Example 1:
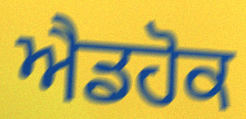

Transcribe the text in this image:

ਐਡਹੋਕ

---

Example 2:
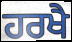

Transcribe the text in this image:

ਹਰਖੈ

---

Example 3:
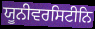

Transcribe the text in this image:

ਯੂਨੀਵਰਸਿਟੀਨਿ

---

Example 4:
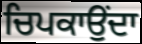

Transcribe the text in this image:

ਚਿਪਕਾਉਂਦਾ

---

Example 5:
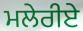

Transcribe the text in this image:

ਮਲੇਰੀਏ